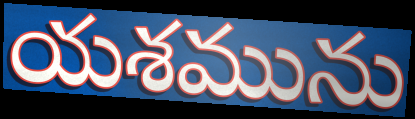
యశమును